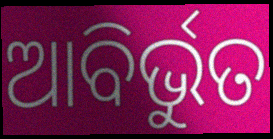
ଆବିର୍ଭୁତ